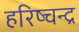
हरिष्चन्द्र